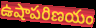
ఉషాపరిణయం